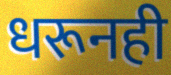
धरूनही